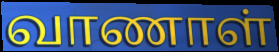
வாணாள்